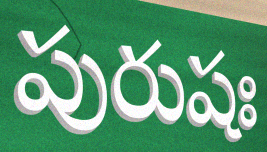
పురుషః